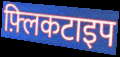
फ़्लिकटाइप